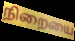
நிறையை